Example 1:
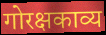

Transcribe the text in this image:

गोरक्षकाव्य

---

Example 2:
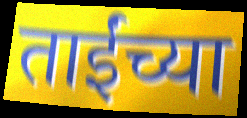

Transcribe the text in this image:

ताईंच्या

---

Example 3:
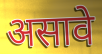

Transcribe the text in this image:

असावे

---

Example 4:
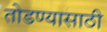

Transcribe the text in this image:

तोडण्यासाठी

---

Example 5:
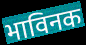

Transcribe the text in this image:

भाविनक